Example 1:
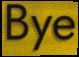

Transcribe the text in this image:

Bye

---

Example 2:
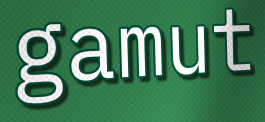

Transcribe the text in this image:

gamut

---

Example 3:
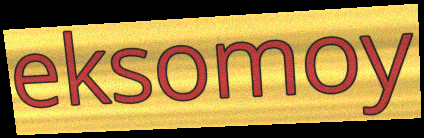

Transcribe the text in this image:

eksomoy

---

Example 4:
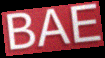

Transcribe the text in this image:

BAE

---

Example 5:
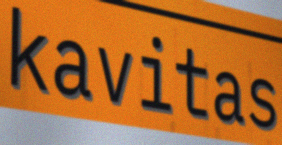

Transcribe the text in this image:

kavitas